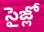
సైజ్లో